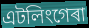
এটলিংগেৰা